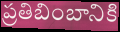
ప్రతిబింబానికి